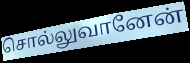
சொல்லுவானேன்